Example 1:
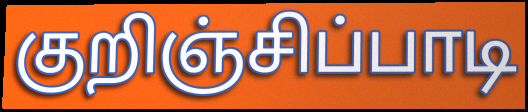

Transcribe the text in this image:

குறிஞ்சிப்பாடி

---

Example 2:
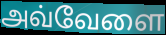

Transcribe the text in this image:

அவ்வேளை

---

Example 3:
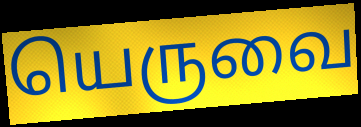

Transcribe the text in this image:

யெருவை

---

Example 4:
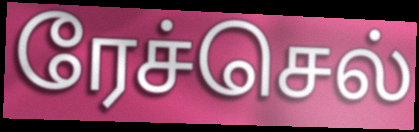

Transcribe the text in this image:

ரேச்செல்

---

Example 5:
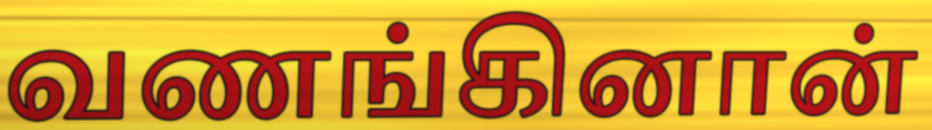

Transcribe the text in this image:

வணங்கினான்